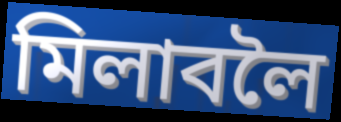
মিলাবলৈ